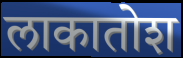
लाकातोश